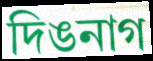
দিঙনাগ